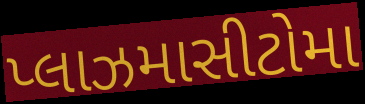
પ્લાઝમાસીટોમા